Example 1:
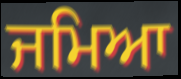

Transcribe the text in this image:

ਜਮਿਆ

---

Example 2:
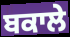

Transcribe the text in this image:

ਬਕਾਲੇ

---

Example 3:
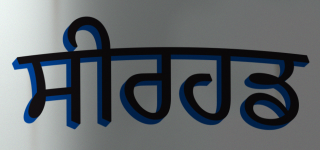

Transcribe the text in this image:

ਸੀਰਹਡ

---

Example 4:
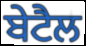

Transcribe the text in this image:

ਬੇਟੈਲ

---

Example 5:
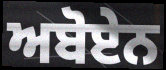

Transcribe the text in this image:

ਅਬੋਏਨ